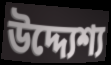
উদ্দ্যেশ্য